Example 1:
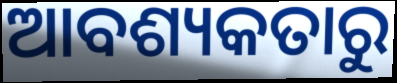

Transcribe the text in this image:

ଆବଶ୍ୟକତାରୁ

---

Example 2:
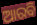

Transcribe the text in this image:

ଆରବି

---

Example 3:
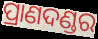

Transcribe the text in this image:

ପ୍ରାଣଦଣ୍ଡର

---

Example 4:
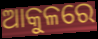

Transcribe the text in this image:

ଆକୁଳରେ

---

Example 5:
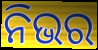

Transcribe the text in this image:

ନିଭର